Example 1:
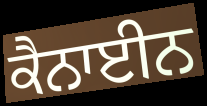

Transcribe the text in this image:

ਕੈਨਾਈਨ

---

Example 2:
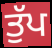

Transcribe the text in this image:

ਤੁੱਪ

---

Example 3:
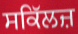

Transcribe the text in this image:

ਸਕਿੱਲਜ਼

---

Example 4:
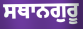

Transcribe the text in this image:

ਸਥਾਨਗੁਰੂ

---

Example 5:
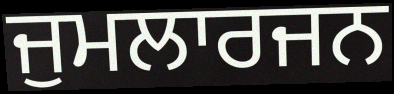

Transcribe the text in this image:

ਜੁਮਲਾਰਜਨ